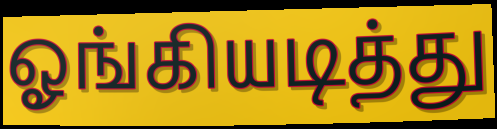
ஓங்கியடித்து